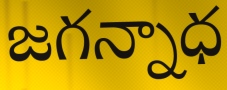
జగన్నాధ